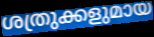
ശത്രുക്കളുമായ